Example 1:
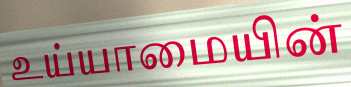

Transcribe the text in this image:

உய்யாமையின்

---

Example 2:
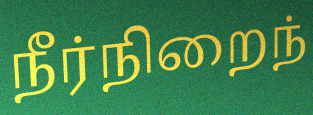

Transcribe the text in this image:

நீர்நிறைந்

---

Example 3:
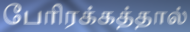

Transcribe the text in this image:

பேரிரக்கத்தால்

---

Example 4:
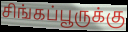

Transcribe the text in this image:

சிங்கப்பூருக்கு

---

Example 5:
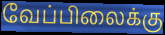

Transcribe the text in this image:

வேப்பிலைக்கு